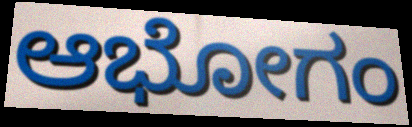
ಆಭೋಗಂ